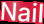
Nail